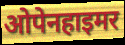
ओपेनहाइमर